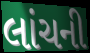
લાંચની